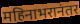
महिनाभरानंतर